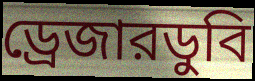
ড্রেজারডুবি